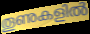
തൂണുകളിൽ